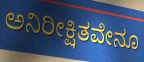
ಅನಿರೀಕ್ಷಿತವೇನೂ